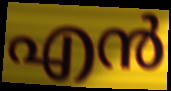
എൻ